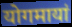
योगमायां